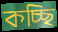
কচ্ছি